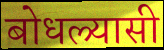
बोधल्यासी